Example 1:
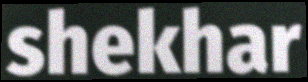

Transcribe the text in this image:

shekhar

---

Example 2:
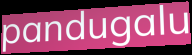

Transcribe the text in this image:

pandugalu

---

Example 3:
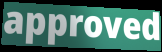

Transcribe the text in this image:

approved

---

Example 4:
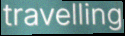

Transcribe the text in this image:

travelling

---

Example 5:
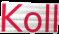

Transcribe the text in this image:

Koll